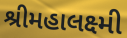
શ્રીમહાલક્ષ્મી